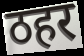
ठहर